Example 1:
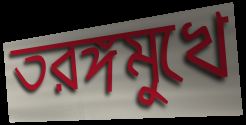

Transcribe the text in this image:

তরঙ্গমুখে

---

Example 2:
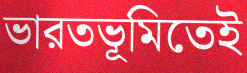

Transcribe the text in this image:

ভারতভূমিতেই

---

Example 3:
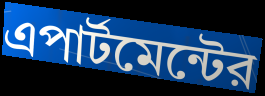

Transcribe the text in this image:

এপার্টমেন্টের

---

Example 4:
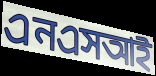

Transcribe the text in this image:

এনএসআই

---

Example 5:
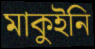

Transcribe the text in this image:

মাকুইনি